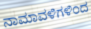
ನಾಮಾವಳಿಗಳಿಂದ